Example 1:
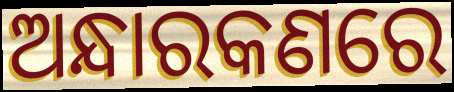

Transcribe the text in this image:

ଅନ୍ଧାରକଣରେ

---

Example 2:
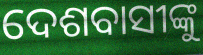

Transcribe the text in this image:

ଦେଶବାସୀଙ୍କୁ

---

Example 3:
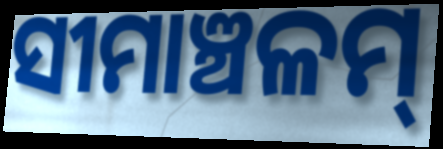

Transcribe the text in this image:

ସୀମାଞ୍ଚଳମ୍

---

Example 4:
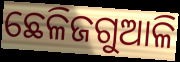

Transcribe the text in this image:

ଛେଳିଜଗୁଆଳି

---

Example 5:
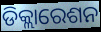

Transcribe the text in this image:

ଡିକ୍ଲାରେଶନ